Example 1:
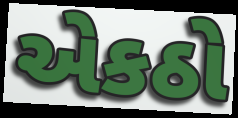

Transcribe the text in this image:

એકઠો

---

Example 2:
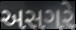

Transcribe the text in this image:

અસગરે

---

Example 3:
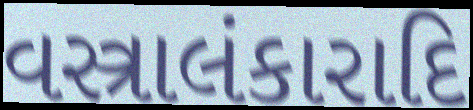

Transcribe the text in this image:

વસ્ત્રાલંકારાદિ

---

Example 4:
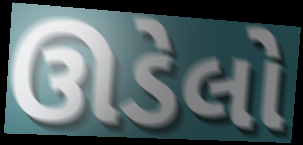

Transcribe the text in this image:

ઊડેલો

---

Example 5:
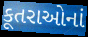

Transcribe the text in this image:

કૂતરાઓનાં